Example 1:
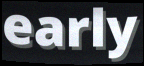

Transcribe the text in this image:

early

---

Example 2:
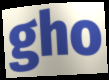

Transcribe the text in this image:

gho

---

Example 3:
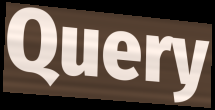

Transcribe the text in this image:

Query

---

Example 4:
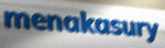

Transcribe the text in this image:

menakasury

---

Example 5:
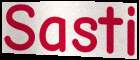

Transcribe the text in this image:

Sasti